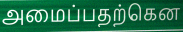
அமைப்பதற்கென